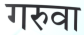
गरुवा